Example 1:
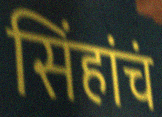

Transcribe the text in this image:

सिंहांचं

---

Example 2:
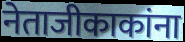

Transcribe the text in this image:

नेताजीकाकांना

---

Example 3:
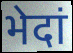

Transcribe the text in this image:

भेदां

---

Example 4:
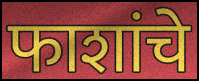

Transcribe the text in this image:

फाशांचे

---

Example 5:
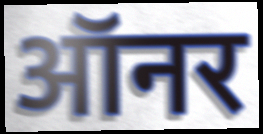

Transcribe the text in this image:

ऑनर